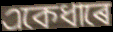
একেধাৰে